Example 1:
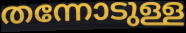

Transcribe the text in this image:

തന്നോടുള്ള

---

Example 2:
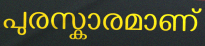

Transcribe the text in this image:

പുരസ്കാരമാണ്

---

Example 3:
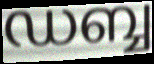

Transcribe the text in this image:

ഡബ്ബ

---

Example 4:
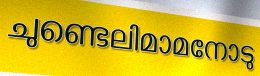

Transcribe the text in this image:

ചുണ്ടെലിമാമനോടു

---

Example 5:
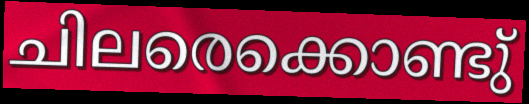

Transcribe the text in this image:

ചിലരെക്കൊണ്ടു്